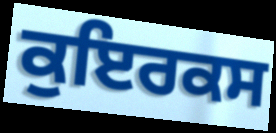
ਕੁਇਰਕਸ